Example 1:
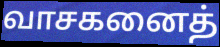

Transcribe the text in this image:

வாசகனைத்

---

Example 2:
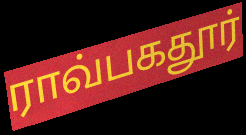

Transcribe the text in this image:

ராவ்பகதூர்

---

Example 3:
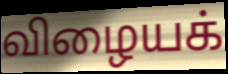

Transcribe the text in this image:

விழையக்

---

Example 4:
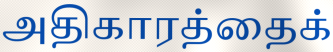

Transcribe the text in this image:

அதிகாரத்தைக்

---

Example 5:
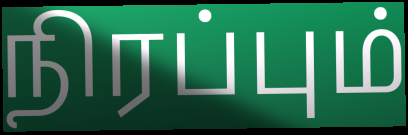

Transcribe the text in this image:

நிரப்பும்